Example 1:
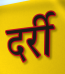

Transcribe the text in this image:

दर्री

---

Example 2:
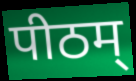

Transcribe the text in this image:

पीठम्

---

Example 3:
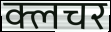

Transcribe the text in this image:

क्लचर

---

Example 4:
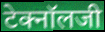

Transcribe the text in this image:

टेक्‍नॉलजी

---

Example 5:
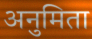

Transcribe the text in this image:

अनुमिता